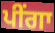
ਪੀਂਗਾ